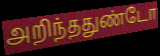
அறிந்ததுண்டோ